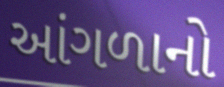
આંગળાનો